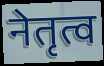
नेतृत्व